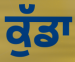
ਕੁੱਡਾ